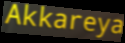
Akkareya